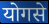
योगसे